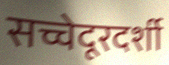
सच्चेदूरदर्शी